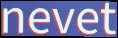
nevet